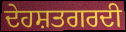
ਦੇਹਸ਼ਤਗਰਦੀ